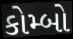
કોમ્બો